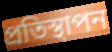
প্রতিস্থাপন